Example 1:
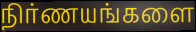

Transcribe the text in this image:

நிர்ணயங்களை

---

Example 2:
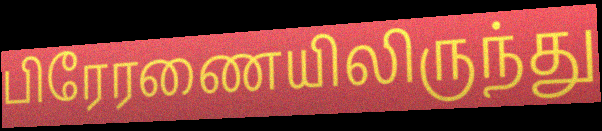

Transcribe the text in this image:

பிரேரணையிலிருந்து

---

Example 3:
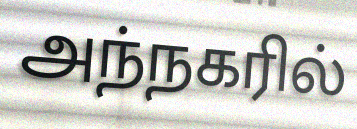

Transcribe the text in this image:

அந்நகரில்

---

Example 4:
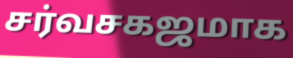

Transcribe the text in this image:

சர்வசகஜமாக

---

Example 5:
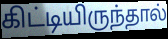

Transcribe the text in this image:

கிட்டியிருந்தால்